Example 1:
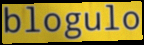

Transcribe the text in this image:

blogulo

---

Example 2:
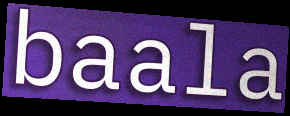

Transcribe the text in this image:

baala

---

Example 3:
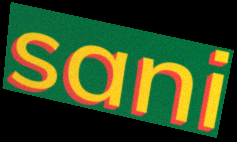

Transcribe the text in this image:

sani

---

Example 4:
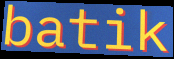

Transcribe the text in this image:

batik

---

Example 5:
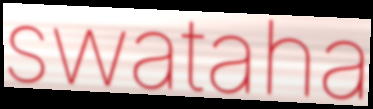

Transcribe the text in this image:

swataha